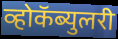
व्होकॅब्युलरी